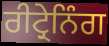
ਰੀਟ੍ਰੇਨਿੰਗ